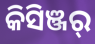
କିସିଞ୍ଜର୍